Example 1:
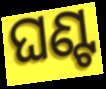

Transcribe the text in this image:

ଘଣ୍ଟ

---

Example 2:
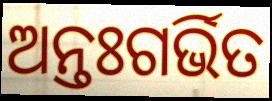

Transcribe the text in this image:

ଅନ୍ତଃଗର୍ଭିତ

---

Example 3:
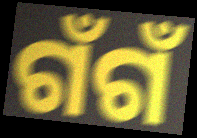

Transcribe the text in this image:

ଗଁଗଁ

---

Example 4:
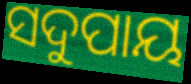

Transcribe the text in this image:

ସଦୁପାୟ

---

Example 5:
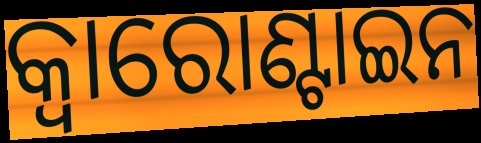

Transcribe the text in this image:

କ୍ୱାରୋଣ୍ଟାଇନ